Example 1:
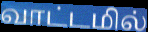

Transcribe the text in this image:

வாட்டமில்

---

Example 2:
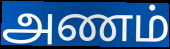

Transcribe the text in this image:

அணம்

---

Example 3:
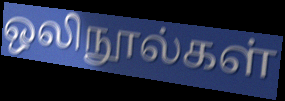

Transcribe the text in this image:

ஒலிநூல்கள்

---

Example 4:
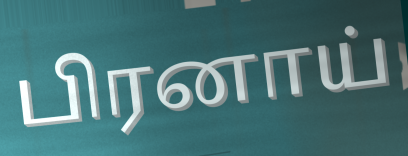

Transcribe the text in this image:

பிரனாய்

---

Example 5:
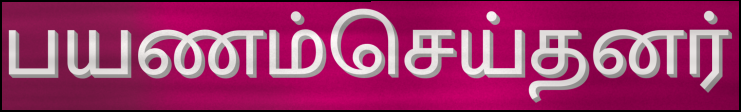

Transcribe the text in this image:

பயணம்செய்தனர்